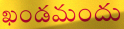
ఖండమందు